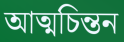
আত্মচিন্তন